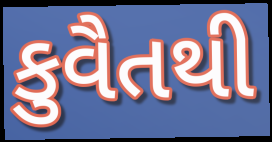
કુવૈતથી